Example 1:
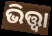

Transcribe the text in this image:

ଭିତ୍ତ୍ୱା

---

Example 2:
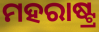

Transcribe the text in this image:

ମହରାଷ୍ଟ୍ର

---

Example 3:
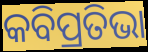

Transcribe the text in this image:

କବିପ୍ରତିଭା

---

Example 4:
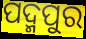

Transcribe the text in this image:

ପଦ୍ମପୁର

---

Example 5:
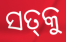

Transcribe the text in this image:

ସତ୍‌କୁ